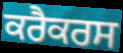
ਕਰੈਕਰਸ